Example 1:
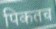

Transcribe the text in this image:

पिकतच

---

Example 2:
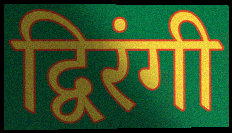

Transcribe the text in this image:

द्विरंगी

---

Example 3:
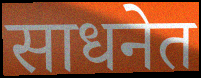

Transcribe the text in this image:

साधनेत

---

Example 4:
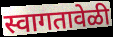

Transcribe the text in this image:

स्वागतावेळी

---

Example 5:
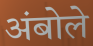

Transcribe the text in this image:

अंबोले